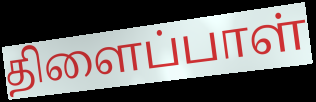
திளைப்பாள்